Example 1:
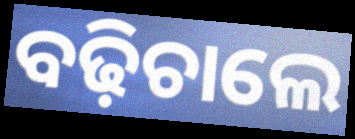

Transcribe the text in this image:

ବଢ଼ିଚାଲେ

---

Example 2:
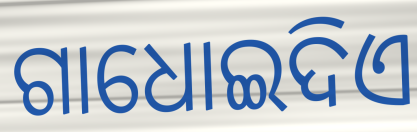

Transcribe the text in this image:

ଗାଧୋଇଦିଏ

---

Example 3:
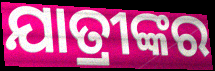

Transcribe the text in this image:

ଯାତ୍ରୀଙ୍କର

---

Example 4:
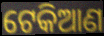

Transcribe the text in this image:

ଟେକିଆଣ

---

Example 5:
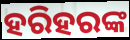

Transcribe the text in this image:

ହରିହରଙ୍କ